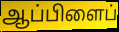
ஆப்பிளைப்